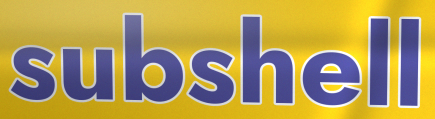
subshell